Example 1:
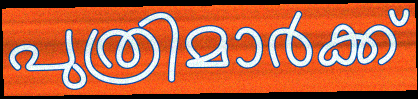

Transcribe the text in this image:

പുത്രിമാർക്ക്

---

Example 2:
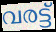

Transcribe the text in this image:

വരട്ട്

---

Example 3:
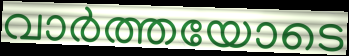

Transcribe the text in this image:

വാർത്തയോടെ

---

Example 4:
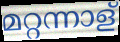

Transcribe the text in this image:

മറ്റന്നാള്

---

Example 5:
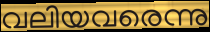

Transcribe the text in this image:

വലിയവരെന്നു